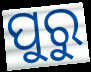
ପୁରୁ